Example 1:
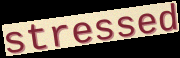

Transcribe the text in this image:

stressed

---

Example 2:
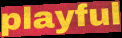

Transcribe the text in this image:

playful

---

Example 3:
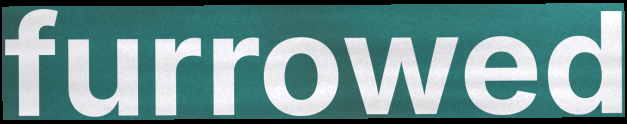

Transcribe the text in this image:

furrowed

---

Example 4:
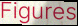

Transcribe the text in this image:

Figures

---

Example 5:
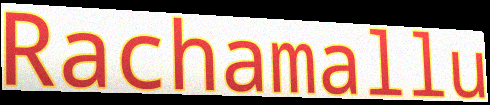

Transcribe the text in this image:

Rachamallu